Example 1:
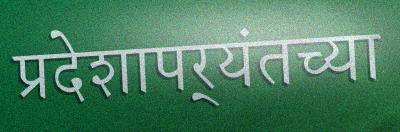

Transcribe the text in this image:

प्रदेशापर्यंतच्या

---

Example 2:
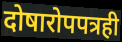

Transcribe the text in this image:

दोषारोपपत्रही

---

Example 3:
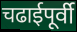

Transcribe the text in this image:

चढाईपूर्वी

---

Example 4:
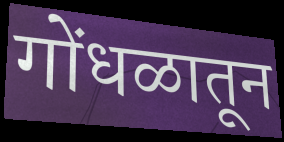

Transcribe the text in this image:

गोंधळातून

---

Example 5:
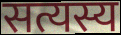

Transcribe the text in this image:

सत्यस्य